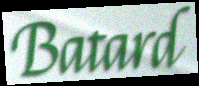
Batard